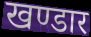
खण्डार